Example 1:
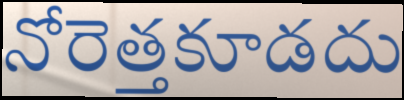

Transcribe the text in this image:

నోరెత్తకూడదు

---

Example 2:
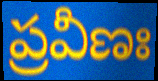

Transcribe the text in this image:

ప్రవీణః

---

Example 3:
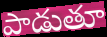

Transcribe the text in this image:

పాడుతూ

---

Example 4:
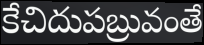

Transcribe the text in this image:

కేచిదుపబ్రువంతే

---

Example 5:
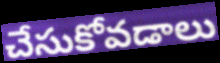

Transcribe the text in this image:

చేసుకోవడాలు